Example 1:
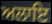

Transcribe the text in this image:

ਅਲਾਇ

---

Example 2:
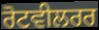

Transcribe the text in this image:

ਰੋਟਵੀਲਰਰ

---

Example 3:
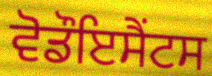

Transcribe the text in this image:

ਵੋਡੌਇਸੈਂਟਸ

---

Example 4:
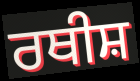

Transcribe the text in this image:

ਰਥੀਸ਼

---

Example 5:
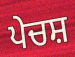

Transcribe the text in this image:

ਪੇਚਸ਼